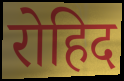
रोहिद